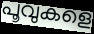
പൂവുകളെ